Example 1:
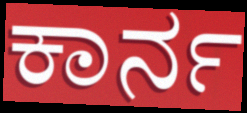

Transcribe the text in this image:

ಕಾರ್ನ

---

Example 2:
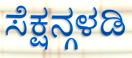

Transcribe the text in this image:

ಸೆಕ್ಷನ್ಗಳಡಿ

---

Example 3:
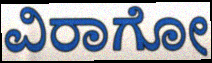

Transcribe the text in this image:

ವಿರಾಗೋ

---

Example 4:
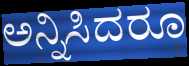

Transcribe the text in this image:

ಅನ್ನಿಸಿದರೂ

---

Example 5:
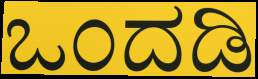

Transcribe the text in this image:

ಒಂದಡಿ